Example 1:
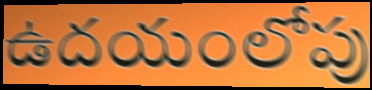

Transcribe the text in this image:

ఉదయంలోపు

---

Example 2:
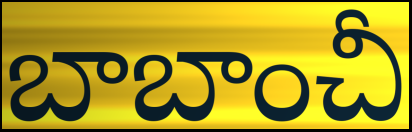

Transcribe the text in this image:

బాబాంచీ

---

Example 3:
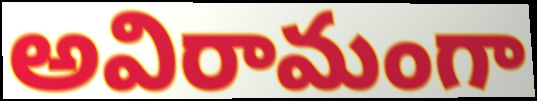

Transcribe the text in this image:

అవిరామంగా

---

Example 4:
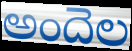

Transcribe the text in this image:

అందెల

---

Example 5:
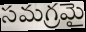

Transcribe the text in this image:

సమగ్రమై